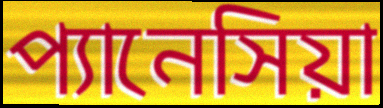
প্যানেসিয়া